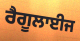
ਰੈਗੂਲਾਈਜ